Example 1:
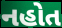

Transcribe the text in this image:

નહોત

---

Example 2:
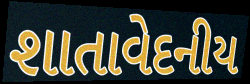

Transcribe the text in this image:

શાતાવેદનીય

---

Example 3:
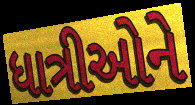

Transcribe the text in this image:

ધાત્રીઓને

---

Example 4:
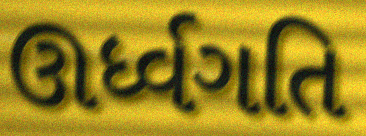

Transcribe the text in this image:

ઊર્ધ્વગતિ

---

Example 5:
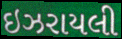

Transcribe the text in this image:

ઇઝરાયલી